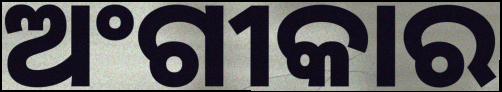
ଅଂଗୀକାର